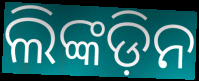
ଲିଙ୍କଡ଼ିନ